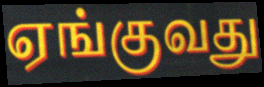
ஏங்குவது